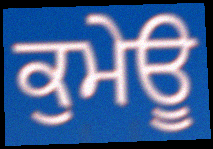
ਕੁਮੇਊ